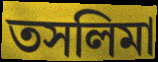
তসলিমা